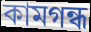
কামগন্ধ